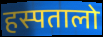
हस्पतालो